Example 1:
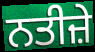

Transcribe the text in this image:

ਨਤੀਜ਼ੇ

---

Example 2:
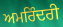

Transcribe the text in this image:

ਅਮਰਿੰਦਰੀ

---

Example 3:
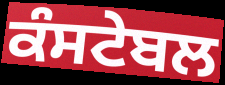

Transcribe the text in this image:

ਕੰਸਟੇਬਲ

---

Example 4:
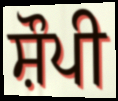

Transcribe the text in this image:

ਸ਼ੌਪੀ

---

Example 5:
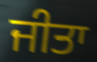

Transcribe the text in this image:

ਜੀਤਾ